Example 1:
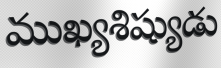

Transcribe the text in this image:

ముఖ్యశిష్యుడు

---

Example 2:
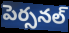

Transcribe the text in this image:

పెర్సనల్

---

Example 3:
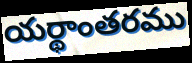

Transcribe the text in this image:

యర్థాంతరము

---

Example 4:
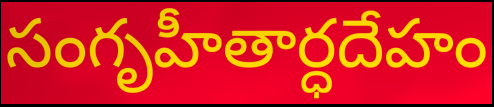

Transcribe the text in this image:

సంగృహీతార్ధదేహం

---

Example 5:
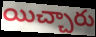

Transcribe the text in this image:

యిచ్చారు